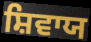
ਸ਼ਿਵਾਯ